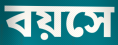
বয়সে